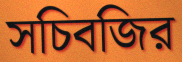
সচিবজির